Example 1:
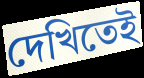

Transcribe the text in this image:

দেখিতেই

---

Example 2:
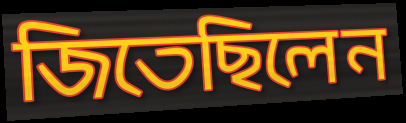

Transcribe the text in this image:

জিতেছিলেন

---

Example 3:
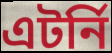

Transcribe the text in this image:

এটর্নি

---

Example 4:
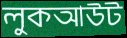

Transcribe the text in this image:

লুকআউট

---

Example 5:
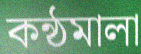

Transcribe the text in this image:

কন্ঠমালা